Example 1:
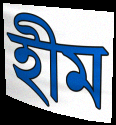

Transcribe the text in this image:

হীম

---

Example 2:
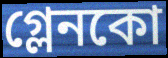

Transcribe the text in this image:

গ্লেনকো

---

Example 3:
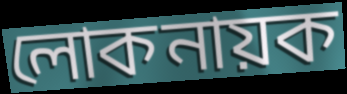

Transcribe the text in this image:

লোকনায়ক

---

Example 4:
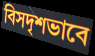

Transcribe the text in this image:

বিসদৃশভাবে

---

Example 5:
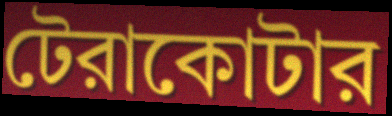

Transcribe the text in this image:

টেরাকোটার